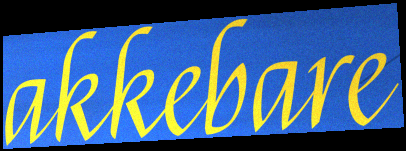
akkebare